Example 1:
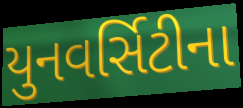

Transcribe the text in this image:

યુનવર્સિટીના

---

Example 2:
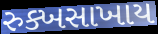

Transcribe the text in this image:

રુક્ખસાખાય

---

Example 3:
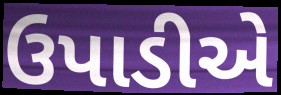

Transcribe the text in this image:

ઉપાડીએ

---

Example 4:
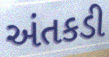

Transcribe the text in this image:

અંતકડી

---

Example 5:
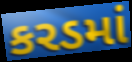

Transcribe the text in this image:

કરડમાં